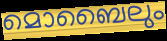
മൊബൈലും